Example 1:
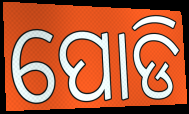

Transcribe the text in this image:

ପୋଡି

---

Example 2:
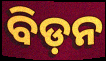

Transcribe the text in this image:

ବିଡ଼ନ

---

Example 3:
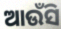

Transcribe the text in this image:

ଆଉଁସି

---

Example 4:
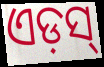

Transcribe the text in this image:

ଏଡ଼ସ୍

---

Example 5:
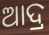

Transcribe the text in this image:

ଆଦ୍ର